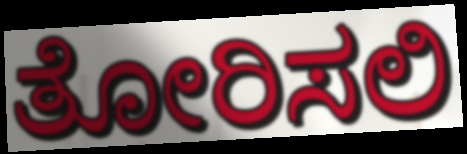
ತೋರಿಸಲಿ